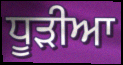
ਧੂੜੀਆ